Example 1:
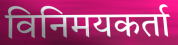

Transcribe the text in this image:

विनिमयकर्ता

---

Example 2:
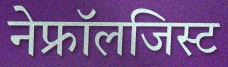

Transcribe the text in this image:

नेफ्रॉलजिस्ट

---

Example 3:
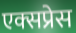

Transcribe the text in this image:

एक्‍सप्रेस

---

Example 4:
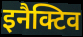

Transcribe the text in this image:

इनैक्टिव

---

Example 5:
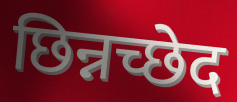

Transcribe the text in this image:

छिन्नच्छेद